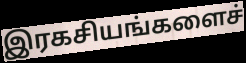
இரகசியங்களைச்